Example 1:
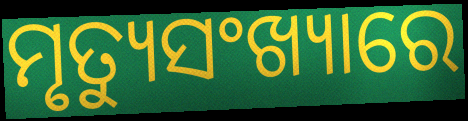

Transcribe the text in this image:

ମୃତ୍ୟୁସଂଖ୍ୟାରେ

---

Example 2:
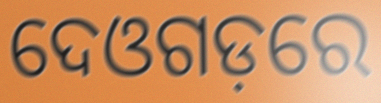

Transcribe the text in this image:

ଦେଓଗଡ଼ରେ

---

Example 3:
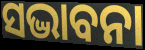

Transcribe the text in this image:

ସଦ୍ଭାବନା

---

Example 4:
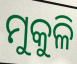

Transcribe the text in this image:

ମୁକୁଳି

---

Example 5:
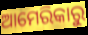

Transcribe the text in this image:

ଆମେରିକାରୁ